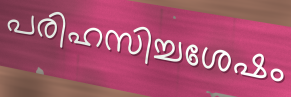
പരിഹസിച്ചശേഷം